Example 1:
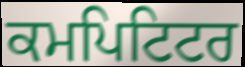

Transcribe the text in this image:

ਕਮਪਿਟਿਟਰ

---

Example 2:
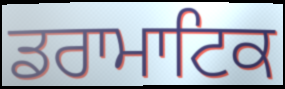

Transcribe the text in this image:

ਡਰਾਮਾਟਿਕ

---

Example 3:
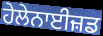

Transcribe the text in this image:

ਹੇਲੇਨਾਈਜ਼ਡ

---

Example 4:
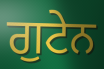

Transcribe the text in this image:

ਗੁਟੇਨ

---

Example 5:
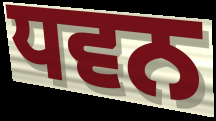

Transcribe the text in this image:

ਧਵਨ